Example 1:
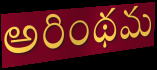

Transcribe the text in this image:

అరింథమ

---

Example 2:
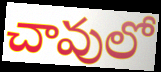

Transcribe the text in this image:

చావులో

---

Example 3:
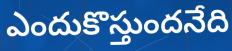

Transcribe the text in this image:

ఎందుకొస్తుందనేది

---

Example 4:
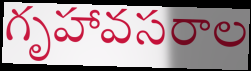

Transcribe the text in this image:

గృహావసరాల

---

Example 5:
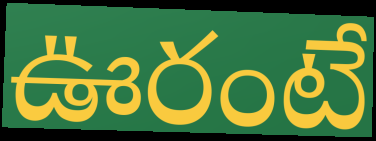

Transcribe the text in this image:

ఊరంటే